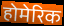
होमेरिक